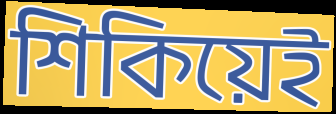
শিকিয়েই